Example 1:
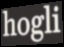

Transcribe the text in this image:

hogli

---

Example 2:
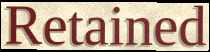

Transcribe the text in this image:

Retained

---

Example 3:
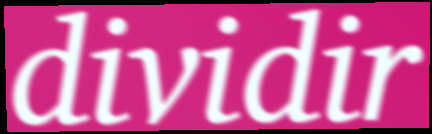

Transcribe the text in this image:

dividir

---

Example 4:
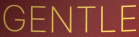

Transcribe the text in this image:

GENTLE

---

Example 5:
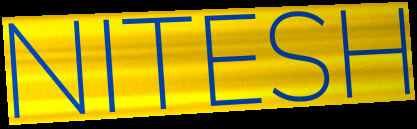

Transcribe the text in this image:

NITESH